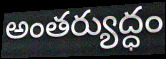
అంతర్యుద్ధం